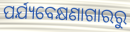
ପର୍ଯ୍ୟବେକ୍ଷଣାଗାରରୁ